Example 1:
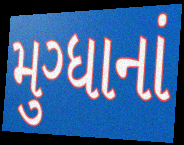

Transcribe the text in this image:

મુગ્ધાનાં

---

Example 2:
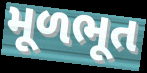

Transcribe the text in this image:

મૂળભૂત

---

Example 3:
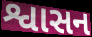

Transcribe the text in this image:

શ્વાસન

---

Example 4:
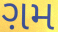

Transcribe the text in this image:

ગ઼મ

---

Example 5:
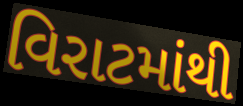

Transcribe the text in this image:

વિરાટમાંથી